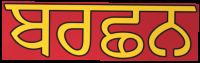
ਬਰਛਨ